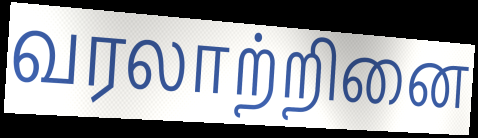
வரலாற்றினை